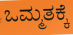
ಒಮ್ಮತಕ್ಕೆ